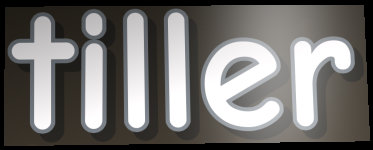
tiller